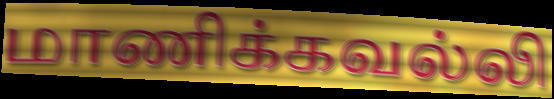
மாணிக்கவல்லி